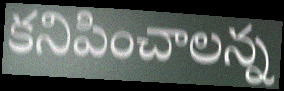
కనిపించాలన్న